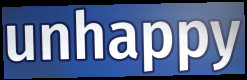
unhappy